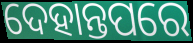
ଦେହାନ୍ତପରେ